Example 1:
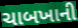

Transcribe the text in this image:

ચાબખાની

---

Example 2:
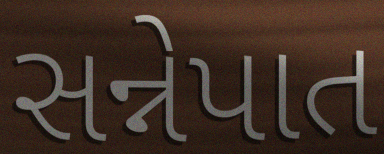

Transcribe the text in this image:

સન્નેપાત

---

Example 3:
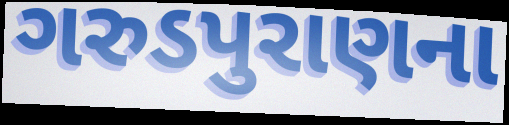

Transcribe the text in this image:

ગરુડપુરાણના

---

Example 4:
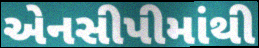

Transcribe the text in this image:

એનસીપીમાંથી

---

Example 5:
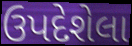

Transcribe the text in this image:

ઉપદેશેલા